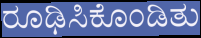
ರೂಢಿಸಿಕೊಂಡಿತು